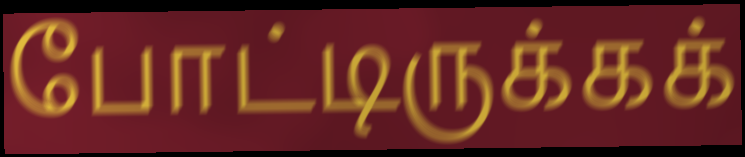
போட்டிருக்கக்